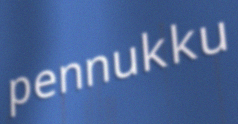
pennukku